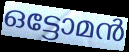
ഒട്ടോമൻ